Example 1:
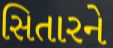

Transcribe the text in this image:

સિતારને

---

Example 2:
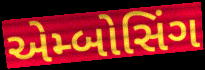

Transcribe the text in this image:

એમ્બોસિંગ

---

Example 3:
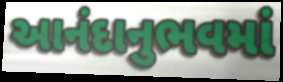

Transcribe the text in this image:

આનંદાનુભવમાં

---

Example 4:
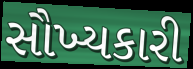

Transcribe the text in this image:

સૌખ્યકારી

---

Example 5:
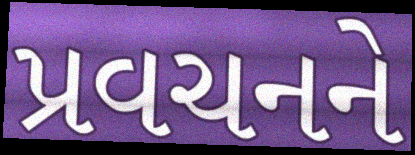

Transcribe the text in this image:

પ્રવચનને